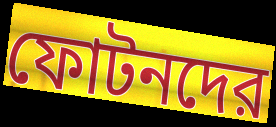
ফোটনদের